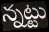
న్నట్టు